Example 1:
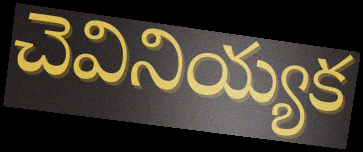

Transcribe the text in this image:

చెవినియ్యక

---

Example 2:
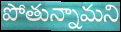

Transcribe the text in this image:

పోతున్నామని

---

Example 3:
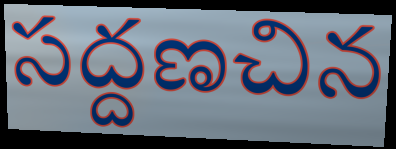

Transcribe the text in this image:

సద్దణచిన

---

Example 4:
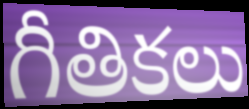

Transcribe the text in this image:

గీతికలు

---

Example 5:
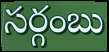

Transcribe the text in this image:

సర్గంబు